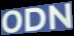
ODN